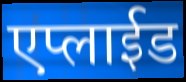
एप्लाईड